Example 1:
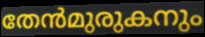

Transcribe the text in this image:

തേൻമുരുകനും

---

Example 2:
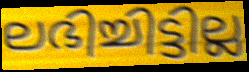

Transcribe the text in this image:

ലഭിച്ചിട്ടില്ല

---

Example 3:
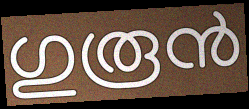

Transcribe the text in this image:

ഗുരൂൻ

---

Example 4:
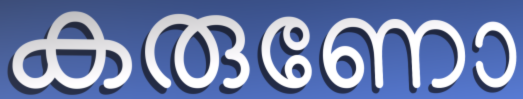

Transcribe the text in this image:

കരുണോ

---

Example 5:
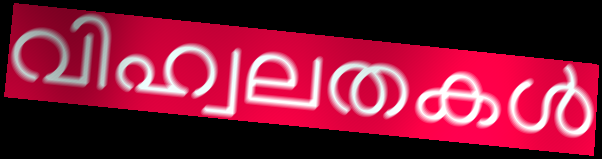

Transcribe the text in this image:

വിഹ്വലതകൾ